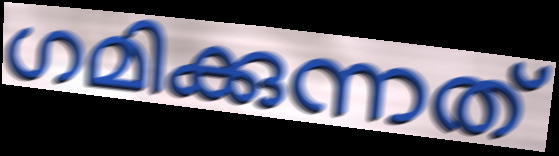
ഗമിക്കുന്നത്